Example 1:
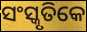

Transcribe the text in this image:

ସଂସ୍କୃତିକେ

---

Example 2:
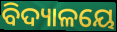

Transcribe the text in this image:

ବିଦ୍ୟାଳୟେ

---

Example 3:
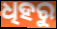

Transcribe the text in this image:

ଧିହରୁ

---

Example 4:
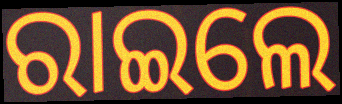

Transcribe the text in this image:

ରାଇଲେ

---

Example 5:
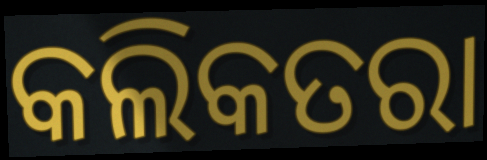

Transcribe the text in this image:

କଲିକତରା